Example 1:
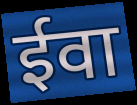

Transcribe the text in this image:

ईवा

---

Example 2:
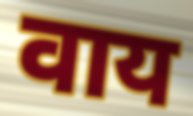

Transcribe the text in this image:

वाय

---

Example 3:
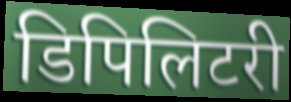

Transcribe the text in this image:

डिपिलिटरी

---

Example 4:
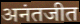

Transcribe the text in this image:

अनंतजीत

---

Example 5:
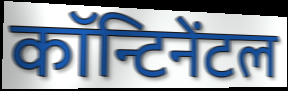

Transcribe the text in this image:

कॉन्टिनेंटल